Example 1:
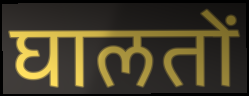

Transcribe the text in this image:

घालतों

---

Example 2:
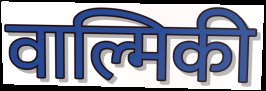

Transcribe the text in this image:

वाल्मिकी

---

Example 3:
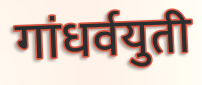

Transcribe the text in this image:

गांधर्वयुती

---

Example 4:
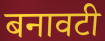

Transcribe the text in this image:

बनावटी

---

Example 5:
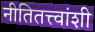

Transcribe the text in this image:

नीतितत्त्वांशी